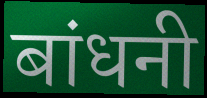
बांधनी